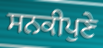
ਸਨਕੀਪੁਣੇ